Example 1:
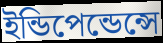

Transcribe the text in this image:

ইন্ডিপেন্ডেন্সে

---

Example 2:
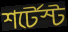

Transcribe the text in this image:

শর্টেস্ট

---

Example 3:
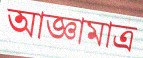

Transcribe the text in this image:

আজ্ঞামাত্র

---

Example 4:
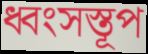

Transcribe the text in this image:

ধ্বংসস্তূপ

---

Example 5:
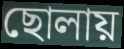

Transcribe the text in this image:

ছোলায়